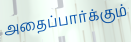
அதைப்பார்க்கும்